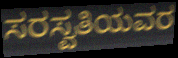
ಸರಸ್ವತಿಯವರ